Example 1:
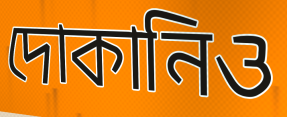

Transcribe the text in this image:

দোকানিও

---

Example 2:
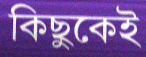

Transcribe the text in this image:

কিছুকেই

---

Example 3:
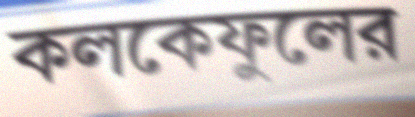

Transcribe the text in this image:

কলকেফুলের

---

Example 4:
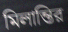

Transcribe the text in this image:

মিলান্তির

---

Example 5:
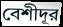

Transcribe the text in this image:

বেশীদূর